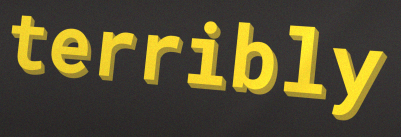
terribly